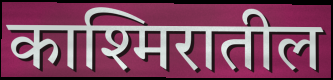
काश्मिरातील